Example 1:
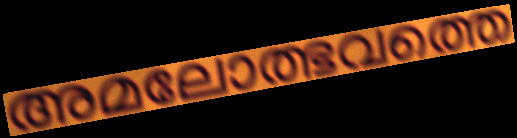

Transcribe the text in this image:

അമലോത്ഭവത്തെ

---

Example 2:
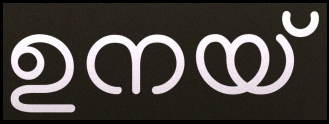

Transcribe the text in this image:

ഉനയ്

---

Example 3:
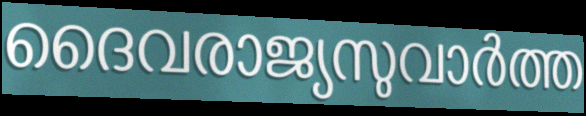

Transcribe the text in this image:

ദൈവരാജ്യസുവാർത്ത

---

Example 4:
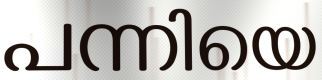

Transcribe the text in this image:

പന്നിയെ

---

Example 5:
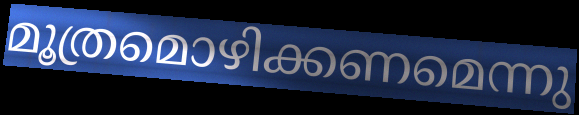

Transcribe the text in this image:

മൂത്രമൊഴിക്കണമെന്നു